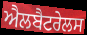
ਐਲਬੈਟਰੇਲਸ